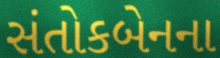
સંતોકબેનના